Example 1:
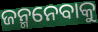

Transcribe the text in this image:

ଜନ୍ମନେବାକୁ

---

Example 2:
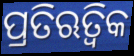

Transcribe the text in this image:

ପ୍ରତିଋତ୍ୱିକ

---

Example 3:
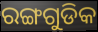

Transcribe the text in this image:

ରଙ୍ଗଗୁଡିକ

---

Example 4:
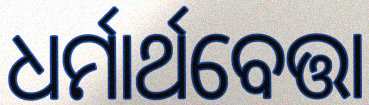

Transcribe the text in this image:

ଧର୍ମାର୍ଥବେତ୍ତା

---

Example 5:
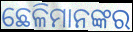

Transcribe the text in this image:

ଛେଳିମାନଙ୍କର